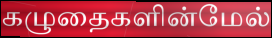
கழுதைகளின்மேல்